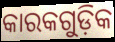
କାରକଗୁଡ଼ିକ